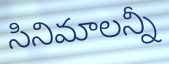
సినిమాలన్నీ